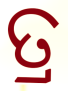
ତ୍ର